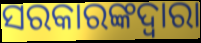
ସରକାରଙ୍କଦ୍ବାରା